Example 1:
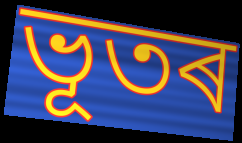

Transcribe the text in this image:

ভূতৰ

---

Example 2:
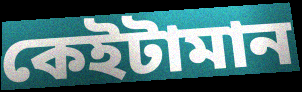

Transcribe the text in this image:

কেইটামান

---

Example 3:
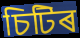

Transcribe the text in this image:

চিটিৰ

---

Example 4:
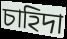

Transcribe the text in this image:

চাহিদা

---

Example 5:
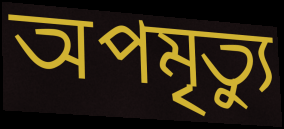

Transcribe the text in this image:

অপমৃত্যু